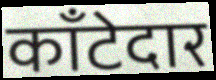
काँटेदार